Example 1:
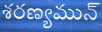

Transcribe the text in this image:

శరణ్యమున్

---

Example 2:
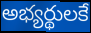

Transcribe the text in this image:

అభ్యర్థులకే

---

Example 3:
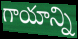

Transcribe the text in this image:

గాయాన్ని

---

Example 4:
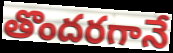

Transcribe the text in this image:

తొందరగానే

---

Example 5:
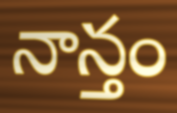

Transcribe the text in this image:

నాన్తం